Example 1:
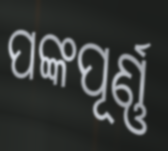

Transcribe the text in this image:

ପଙ୍କପୂର୍ଣ୍ଣ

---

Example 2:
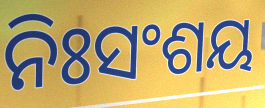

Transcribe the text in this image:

ନିଃସଂଶୟ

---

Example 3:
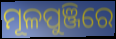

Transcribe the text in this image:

ମୂଳପୁଞ୍ଜିରେ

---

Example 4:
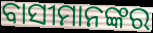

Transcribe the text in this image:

ବାସୀମାନଙ୍କର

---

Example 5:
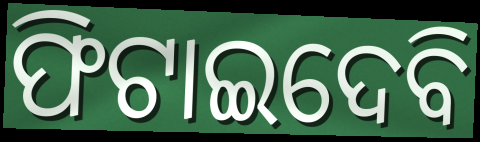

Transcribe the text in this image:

ଫିଟାଇଦେବି